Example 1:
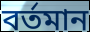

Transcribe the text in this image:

বৰ্তমান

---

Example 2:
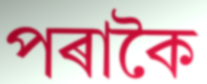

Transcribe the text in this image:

পৰাকৈ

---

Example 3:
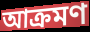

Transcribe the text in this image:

আক্ৰমণ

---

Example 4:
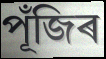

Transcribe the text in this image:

পূঁজিৰ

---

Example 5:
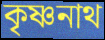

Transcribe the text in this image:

কৃষ্ণনাথ